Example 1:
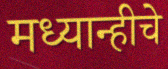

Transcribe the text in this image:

मध्यान्हीचे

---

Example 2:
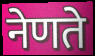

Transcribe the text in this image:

नेणते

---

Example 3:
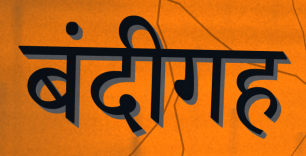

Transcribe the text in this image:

बंदीगह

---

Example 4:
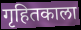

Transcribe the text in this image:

गृहितकाला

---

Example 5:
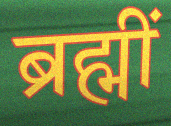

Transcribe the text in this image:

ब्रह्मीं